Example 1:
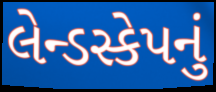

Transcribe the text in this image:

લેન્ડસ્કેપનું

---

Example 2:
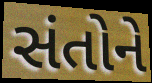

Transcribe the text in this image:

સંતોને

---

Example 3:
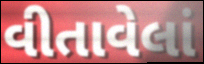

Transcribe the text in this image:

વીતાવેલાં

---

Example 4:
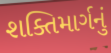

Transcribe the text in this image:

શક્તિમાર્ગનું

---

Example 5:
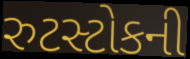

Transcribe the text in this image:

રુટસ્ટોકની